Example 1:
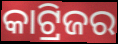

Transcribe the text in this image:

କାଟ୍ରିଜର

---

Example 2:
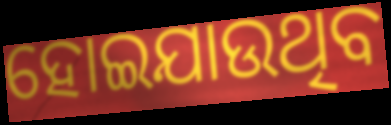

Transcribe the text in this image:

ହୋଇଯାଉଥିବ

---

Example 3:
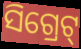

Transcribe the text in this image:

ସିଗ୍ରେଟ୍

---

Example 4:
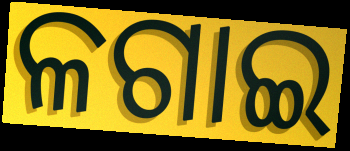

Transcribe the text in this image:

ଳଗାଇ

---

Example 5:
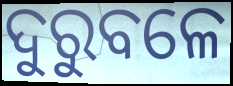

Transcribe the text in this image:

ଦୁରୁବଳେ